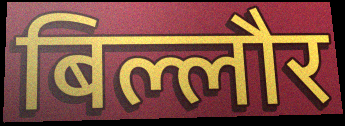
बिल्लौर